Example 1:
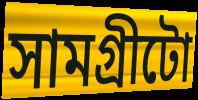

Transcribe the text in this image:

সামগ্ৰীটো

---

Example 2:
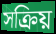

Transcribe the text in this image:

সক্ৰিয়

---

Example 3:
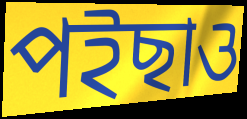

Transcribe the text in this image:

পইছাও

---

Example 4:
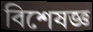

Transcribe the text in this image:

বিশেষজ্ঞ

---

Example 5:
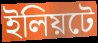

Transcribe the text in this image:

ইলিয়টে